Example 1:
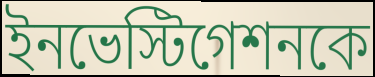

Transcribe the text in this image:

ইনভেস্টিগেশনকে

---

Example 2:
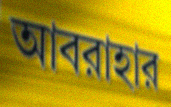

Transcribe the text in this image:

আবরাহার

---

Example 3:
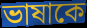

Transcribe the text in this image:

ভাষাকে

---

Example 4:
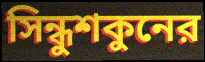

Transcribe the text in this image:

সিন্ধুশকুনের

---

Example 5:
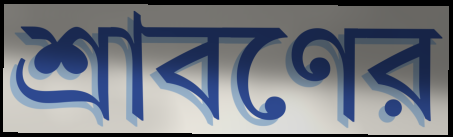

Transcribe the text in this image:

শ্রাবণের